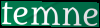
temne